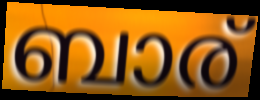
ബാര്